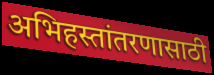
अभिहस्तांतरणासाठी